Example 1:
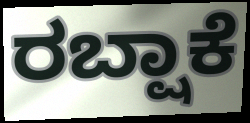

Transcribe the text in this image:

ರಬ್ಷಾಕೆ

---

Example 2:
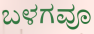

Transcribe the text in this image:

ಬಳಗವೂ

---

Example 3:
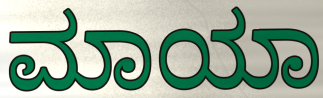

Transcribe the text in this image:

ಮಾಯಾ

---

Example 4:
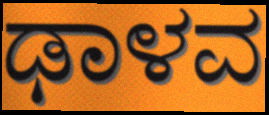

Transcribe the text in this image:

ಢಾಳವ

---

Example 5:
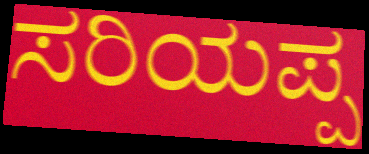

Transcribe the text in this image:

ಸರಿಯಪ್ಪ